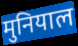
मुनियाल